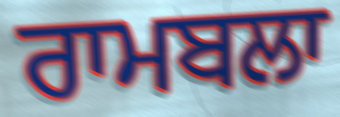
ਰਾਮਬਲਾ